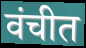
वंचीत